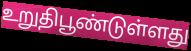
உறுதிபூண்டுள்ளது